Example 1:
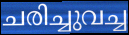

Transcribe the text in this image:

ചരിച്ചുവച്ച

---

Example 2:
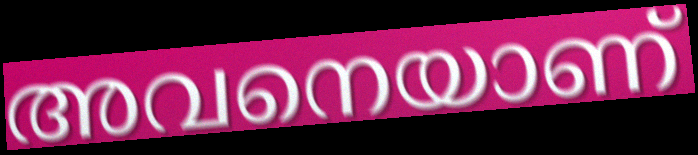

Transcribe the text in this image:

അവനെയാണ്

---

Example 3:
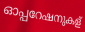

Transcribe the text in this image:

ഓപ്പറേഷനുകള്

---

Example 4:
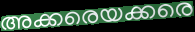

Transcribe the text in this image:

അക്കരെയക്കരെ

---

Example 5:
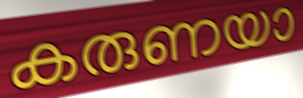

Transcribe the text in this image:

കരുണയാ